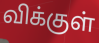
விக்குள்